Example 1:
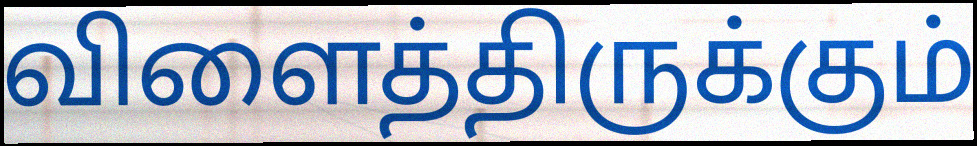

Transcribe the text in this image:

விளைத்திருக்கும்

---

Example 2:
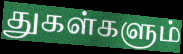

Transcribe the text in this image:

துகள்களும்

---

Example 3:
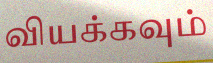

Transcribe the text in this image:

வியக்கவும்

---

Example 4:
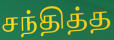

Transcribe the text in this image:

சந்தித்த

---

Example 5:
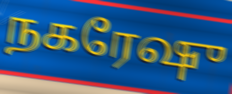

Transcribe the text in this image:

நகரேஷு